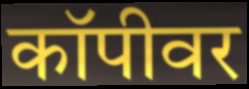
कॉपीवर